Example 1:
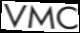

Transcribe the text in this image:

VMC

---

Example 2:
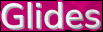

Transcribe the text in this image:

Glides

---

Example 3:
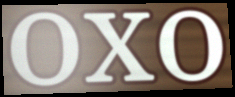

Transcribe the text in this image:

oxo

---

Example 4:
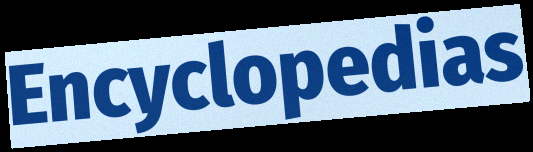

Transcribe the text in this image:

Encyclopedias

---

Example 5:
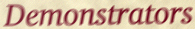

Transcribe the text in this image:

Demonstrators